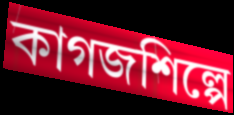
কাগজশিল্পে